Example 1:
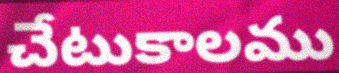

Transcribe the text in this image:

చేటుకాలము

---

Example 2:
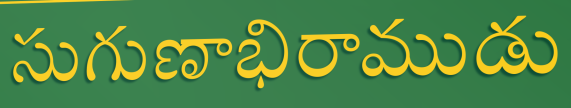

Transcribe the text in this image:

సుగుణాభిరాముడు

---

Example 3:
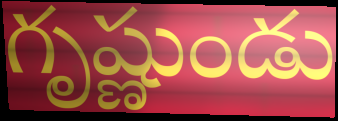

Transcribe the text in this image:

గృష్ణుండు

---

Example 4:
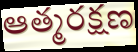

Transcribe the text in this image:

ఆత్మరక్షణ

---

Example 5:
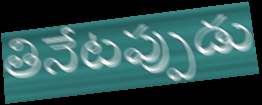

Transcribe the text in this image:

తినేటప్పుడు